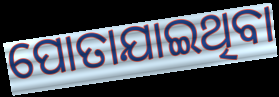
ପୋତାଯାଇଥିବା